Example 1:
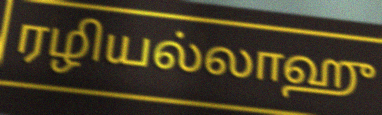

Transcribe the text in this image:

ரழியல்லாஹு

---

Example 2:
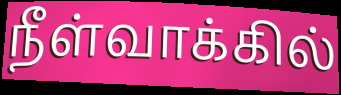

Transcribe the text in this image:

நீள்வாக்கில்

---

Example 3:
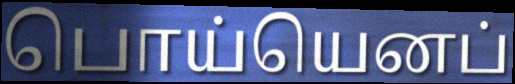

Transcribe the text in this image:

பொய்யெனப்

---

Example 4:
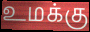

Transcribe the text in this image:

உமக்கு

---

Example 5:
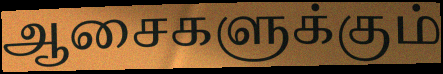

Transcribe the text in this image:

ஆசைகளுக்கும்